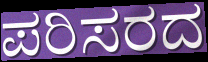
ಪರಿಸರದ